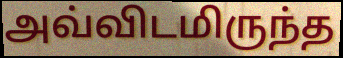
அவ்விடமிருந்த